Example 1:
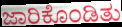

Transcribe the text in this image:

ಜಾರಿಕೊಂಡಿತು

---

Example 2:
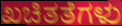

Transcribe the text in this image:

ಖಚಿತತೆಗಳು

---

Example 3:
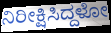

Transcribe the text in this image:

ನಿರೀಕ್ಷಿಸಿದ್ದಳೋ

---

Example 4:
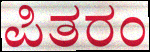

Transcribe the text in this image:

ಪಿತರಂ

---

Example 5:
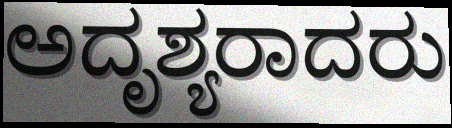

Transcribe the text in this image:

ಅದೃಶ್ಯರಾದರು